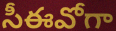
సీఈవోగా